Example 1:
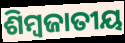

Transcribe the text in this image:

ଶିମ୍ବଜାତୀୟ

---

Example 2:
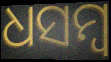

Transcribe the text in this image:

ଧସମ୍ବ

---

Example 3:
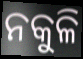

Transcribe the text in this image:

ନକୁଳି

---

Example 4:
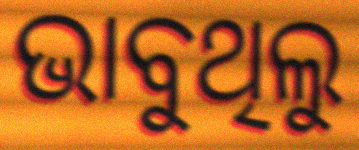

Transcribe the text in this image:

ଭାବୁଥିଲୁ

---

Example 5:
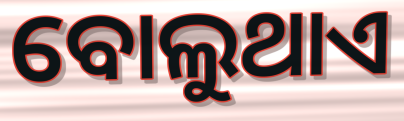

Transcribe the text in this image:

ବୋଲୁଥାଏ